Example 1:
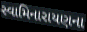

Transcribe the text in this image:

સ્વામિનારાયણના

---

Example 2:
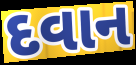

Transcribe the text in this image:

દવાન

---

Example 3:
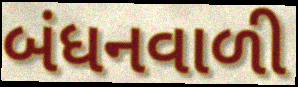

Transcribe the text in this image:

બંધનવાળી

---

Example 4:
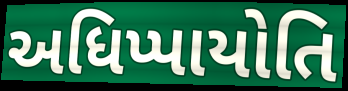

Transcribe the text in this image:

અધિપ્પાયોતિ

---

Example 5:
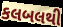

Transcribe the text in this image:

કલબલથી